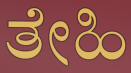
ತೇಹಿ